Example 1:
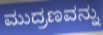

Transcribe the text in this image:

ಮುದ್ರಣವನ್ನು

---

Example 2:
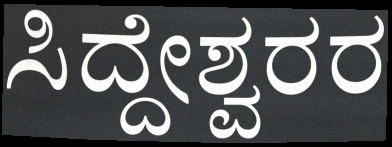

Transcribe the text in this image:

ಸಿದ್ದೇಶ್ವರರ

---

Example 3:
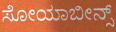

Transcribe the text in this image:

ಸೋಯಾಬೀನ್ಸ್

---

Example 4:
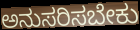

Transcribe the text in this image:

ಅನುಸರಿಸಬೇಕು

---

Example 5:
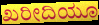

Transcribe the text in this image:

ಖರೀದಿಯೂ